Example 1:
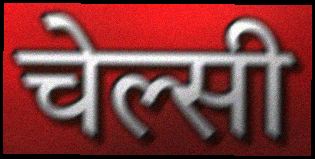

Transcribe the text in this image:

चेल्सी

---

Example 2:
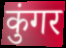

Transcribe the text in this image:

कुंगर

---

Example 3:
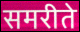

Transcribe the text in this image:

समरीते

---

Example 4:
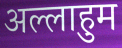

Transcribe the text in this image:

अल्लाहुम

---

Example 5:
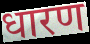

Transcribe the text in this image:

धारण